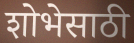
शोभेसाठी